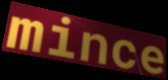
mince